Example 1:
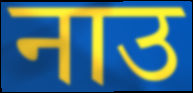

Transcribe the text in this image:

नाउ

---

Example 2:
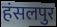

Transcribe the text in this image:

हंसलपुर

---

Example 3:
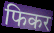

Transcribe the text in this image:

फिकर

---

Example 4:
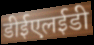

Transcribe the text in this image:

डीईएलईडी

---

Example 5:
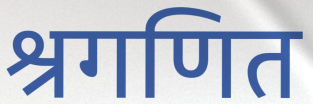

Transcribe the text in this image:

श्रगणित